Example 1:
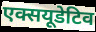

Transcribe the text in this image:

एक्सयूडेटिव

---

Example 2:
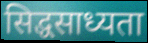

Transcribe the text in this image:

सिद्धसाध्यता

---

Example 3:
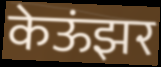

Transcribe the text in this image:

केऊंझर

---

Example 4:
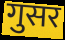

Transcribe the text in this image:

गुसर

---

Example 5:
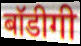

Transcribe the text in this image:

बॉडीगी